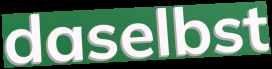
daselbst